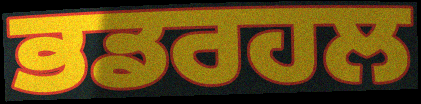
ਭਡਰਹਲ